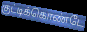
குட்டிக்கொண்டே